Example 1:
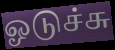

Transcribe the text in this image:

ஓடுச்சு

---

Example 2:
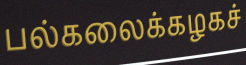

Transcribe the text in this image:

பல்கலைக்கழகச்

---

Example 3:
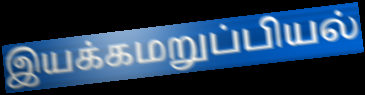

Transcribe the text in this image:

இயக்கமறுப்பியல்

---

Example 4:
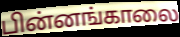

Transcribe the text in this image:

பின்னங்காலை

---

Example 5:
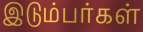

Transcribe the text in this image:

இடும்பர்கள்